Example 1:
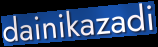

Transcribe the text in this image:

dainikazadi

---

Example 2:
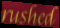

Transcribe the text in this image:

rushed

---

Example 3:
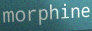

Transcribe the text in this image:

morphine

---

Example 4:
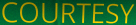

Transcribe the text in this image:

COURTESY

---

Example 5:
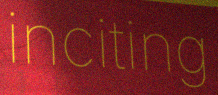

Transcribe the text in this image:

inciting